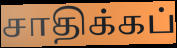
சாதிக்கப்